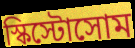
স্কিস্টোসোম